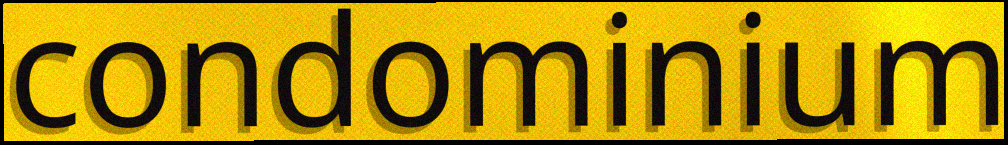
condominium